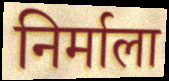
निर्माला